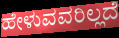
ಹೇಳುವವರಿಲ್ಲದೆ